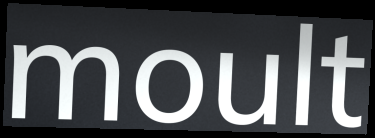
moult